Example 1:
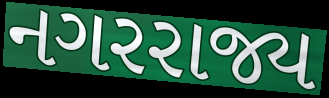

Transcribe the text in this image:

નગરરાજ્ય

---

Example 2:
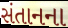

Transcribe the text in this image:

સંતાનના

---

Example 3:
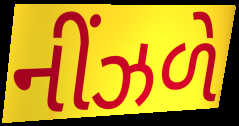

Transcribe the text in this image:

નીંઝળે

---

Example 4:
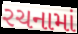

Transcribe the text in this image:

રચનામાં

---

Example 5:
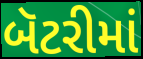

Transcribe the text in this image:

બૅટરીમાં